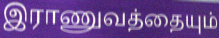
இராணுவத்தையும்